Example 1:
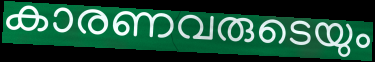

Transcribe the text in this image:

കാരണവരുടെയും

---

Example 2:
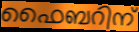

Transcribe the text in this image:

ഫൈബറിന്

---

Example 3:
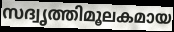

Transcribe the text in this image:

സദ്വൃത്തിമൂലകമായ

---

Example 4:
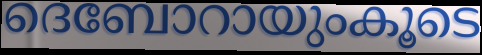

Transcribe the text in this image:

ദെബോറായുംകൂടെ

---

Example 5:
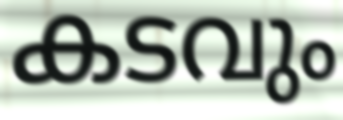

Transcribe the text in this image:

കടവും